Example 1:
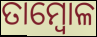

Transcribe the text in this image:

ତାମ୍ବୋଳ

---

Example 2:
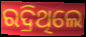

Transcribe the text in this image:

ରଦ୍ରିଥିଲେ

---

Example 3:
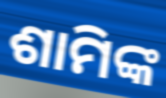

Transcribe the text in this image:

ଶାମିଙ୍କ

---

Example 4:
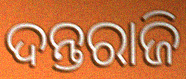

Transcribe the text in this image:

ଦନ୍ତରାଜି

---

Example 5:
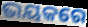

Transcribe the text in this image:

ଭୟକରେ